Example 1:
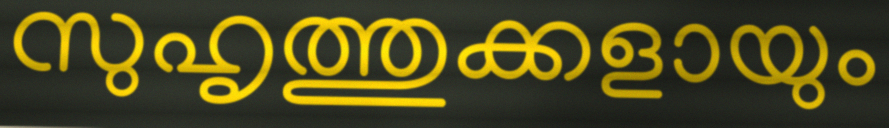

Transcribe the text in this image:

സുഹൃത്തുക്കളായും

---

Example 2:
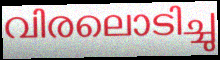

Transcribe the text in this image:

വിരലൊടിച്ചു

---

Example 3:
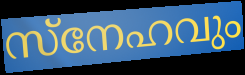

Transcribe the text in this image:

സ്നേഹവും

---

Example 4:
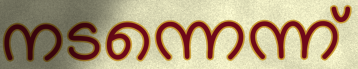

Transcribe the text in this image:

നടന്നെന്ന്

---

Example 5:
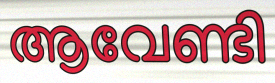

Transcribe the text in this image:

ആവേണ്ടി